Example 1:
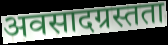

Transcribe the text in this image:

अवसादग्रस्तता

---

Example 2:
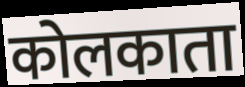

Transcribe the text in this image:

कोलकाता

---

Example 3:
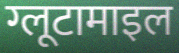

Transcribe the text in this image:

ग्लूटामाइल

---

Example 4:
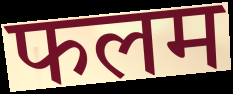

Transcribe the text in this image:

फलम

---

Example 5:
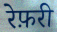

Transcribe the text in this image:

रेफ़री